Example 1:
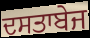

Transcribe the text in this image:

ਦਸਤਾਬੇਜ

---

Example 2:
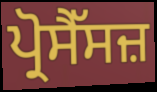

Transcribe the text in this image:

ਪ੍ਰੋਸੈੱਸਜ਼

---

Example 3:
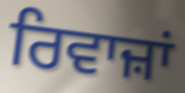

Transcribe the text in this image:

ਰਿਵਾਜ਼ਾਂ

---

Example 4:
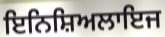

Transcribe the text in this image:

ਇਨਿਸ਼ਿਅਲਾਇਜ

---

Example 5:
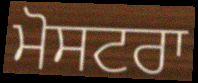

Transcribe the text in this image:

ਮੋਸਟਰਾ